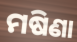
ମଷିଣା